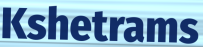
Kshetrams